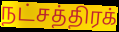
நட்சத்திரக்